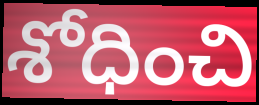
శోధించి